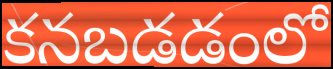
కనబడడంలో